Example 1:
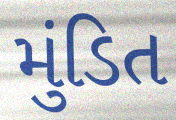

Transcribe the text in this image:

મુંડિત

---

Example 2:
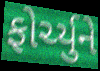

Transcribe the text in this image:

ફોર્ચ્યુને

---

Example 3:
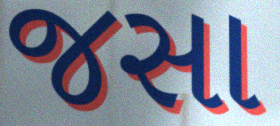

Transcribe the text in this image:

જસા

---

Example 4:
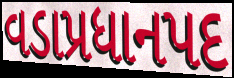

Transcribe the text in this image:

વડાપ્રધાનપદ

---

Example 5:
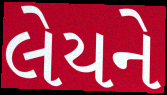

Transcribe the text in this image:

લેયને